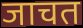
जाचत